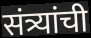
संत्र्यांची